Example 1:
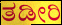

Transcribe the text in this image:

ತಡೀರಿ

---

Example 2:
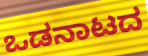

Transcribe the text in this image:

ಒಡನಾಟದ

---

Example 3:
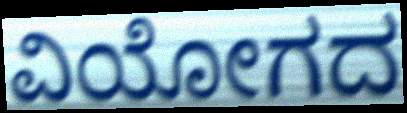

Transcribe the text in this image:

ವಿಯೋಗದ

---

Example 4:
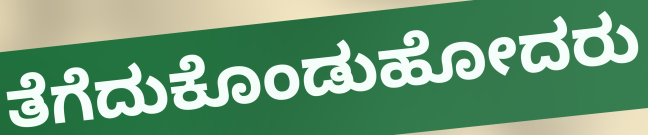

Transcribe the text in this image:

ತೆಗೆದುಕೊಂಡುಹೋದರು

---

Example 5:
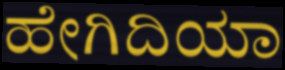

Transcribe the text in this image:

ಹೇಗಿದಿಯಾ